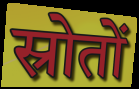
स्रोतों